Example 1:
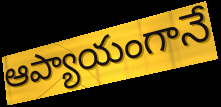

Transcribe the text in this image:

ఆప్యాయంగానే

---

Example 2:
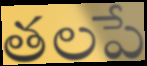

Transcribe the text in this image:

తలపే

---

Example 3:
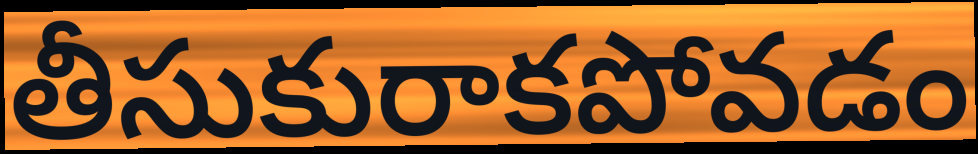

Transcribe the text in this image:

తీసుకురాకపోవడం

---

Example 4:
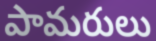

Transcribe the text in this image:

పామరులు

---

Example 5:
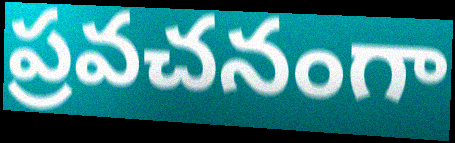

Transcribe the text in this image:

ప్రవచనంగా